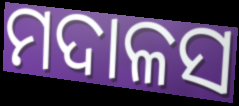
ମଦାଳସ